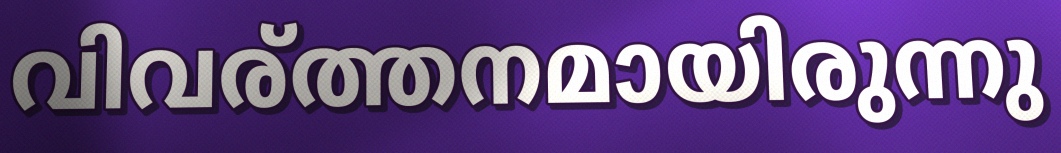
വിവര്ത്തനമായിരുന്നു